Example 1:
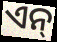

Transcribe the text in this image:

ଏନ୍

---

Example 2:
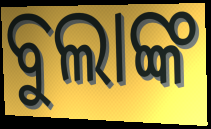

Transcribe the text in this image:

ବୁଲାଙ୍କ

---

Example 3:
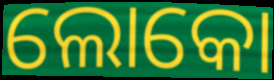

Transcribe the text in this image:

ଲୋକୋ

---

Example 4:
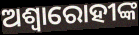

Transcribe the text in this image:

ଅଶ୍ୱାରୋହୀଙ୍କ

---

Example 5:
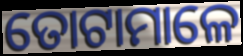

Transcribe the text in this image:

ତୋଟାମାଳେ